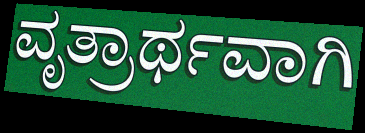
ವೃತ್ರಾರ್ಥವಾಗಿ